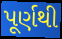
પૂર્ણથી